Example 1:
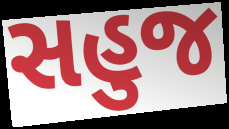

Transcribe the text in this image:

સહુજ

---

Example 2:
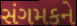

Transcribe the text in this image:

સંગમકને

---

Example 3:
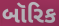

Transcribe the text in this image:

બૉરિક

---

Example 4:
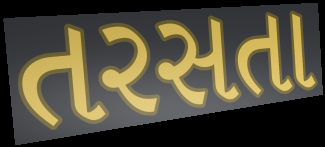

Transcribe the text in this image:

તરસતા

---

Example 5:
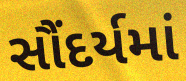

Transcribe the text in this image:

સૌંદર્યમાં